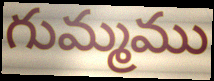
గుమ్మము